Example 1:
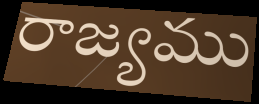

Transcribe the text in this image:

రాజ్యము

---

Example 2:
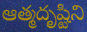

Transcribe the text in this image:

ఆత్మదృష్టిని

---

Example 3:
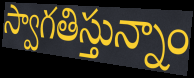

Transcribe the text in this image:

స్వాగతిస్తున్నాం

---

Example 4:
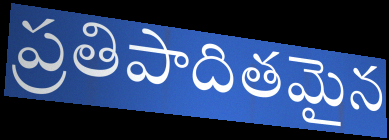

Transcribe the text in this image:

ప్రతిపాదితమైన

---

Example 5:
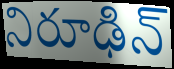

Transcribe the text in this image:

నిరూఢిన్